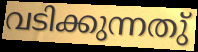
വടിക്കുന്നതു്